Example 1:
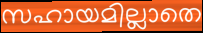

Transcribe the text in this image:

സഹായമില്ലാതെ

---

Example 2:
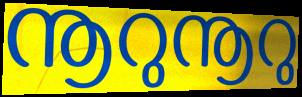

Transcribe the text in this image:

നൂറുനൂറു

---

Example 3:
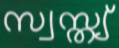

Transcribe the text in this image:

സ്വസ്ത്യ്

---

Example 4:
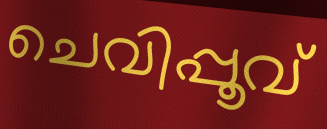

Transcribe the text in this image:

ചെവിപ്പൂവ്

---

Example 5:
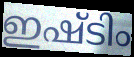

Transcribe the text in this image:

ഇഷ്ടിം